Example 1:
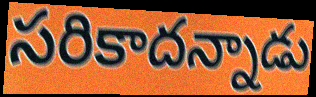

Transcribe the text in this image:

సరికాదన్నాడు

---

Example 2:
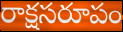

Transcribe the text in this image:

రాక్షసరూపం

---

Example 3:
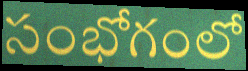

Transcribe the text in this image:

సంభోగంలో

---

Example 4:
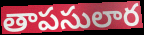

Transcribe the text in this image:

తాపసులార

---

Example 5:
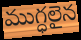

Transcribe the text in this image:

ముగ్ధలైన